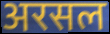
अरसल